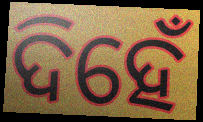
ଦିହେଁ